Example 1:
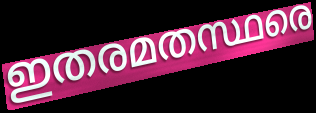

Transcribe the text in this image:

ഇതരമതസ്ഥരെ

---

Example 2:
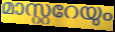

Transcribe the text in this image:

മാസ്റ്ററേയും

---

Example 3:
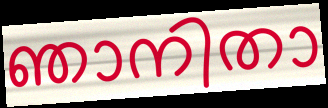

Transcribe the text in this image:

ഞാനിതാ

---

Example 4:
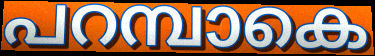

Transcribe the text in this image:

പറമ്പാകെ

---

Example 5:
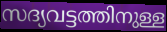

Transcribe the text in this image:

സദ്യവട്ടത്തിനുള്ള